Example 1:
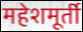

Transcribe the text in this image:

महेशमूर्ती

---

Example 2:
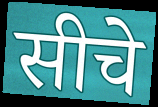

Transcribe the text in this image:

सीचे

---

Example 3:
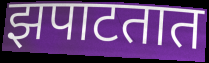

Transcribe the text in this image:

झपाटतात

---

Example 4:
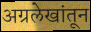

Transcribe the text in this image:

अग्रलेखांतून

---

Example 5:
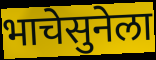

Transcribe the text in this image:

भाचेसुनेला